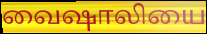
வைஷாலியை